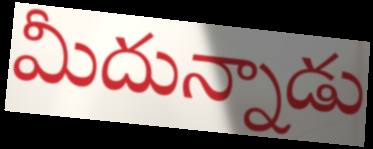
మీదున్నాడు